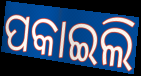
ପକାଇଲି